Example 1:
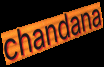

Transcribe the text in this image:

chandana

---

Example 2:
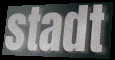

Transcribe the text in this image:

stadt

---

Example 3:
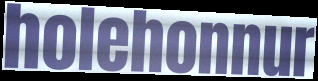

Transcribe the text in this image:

holehonnur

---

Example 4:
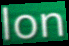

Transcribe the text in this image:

Ion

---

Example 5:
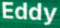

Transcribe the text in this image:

Eddy